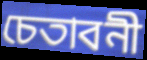
চেতাবনী